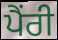
ਪੈਂਰੀ